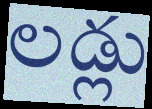
లడ్లు